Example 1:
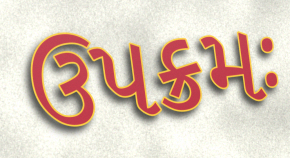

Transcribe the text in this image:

ઉપક્રમઃ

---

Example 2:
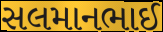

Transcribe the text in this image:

સલમાનભાઈ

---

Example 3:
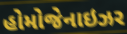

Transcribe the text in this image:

હોમોજેનાઇઝર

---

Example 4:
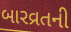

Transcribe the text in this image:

બારવ્રતની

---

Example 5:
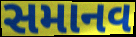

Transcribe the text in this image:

સમાનવ